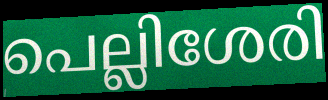
പെല്ലിശേരി